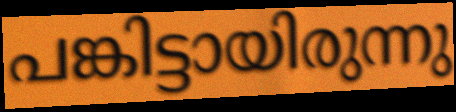
പങ്കിട്ടായിരുന്നു